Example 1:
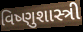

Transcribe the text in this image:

વિષ્ણુશાસ્ત્રી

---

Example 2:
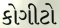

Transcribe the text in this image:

કોગીટો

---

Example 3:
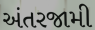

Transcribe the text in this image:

અંતરજામી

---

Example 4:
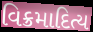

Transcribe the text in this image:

વિક્રમાદિત્ય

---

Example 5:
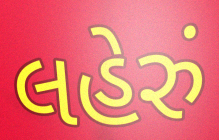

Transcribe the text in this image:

લહેરું